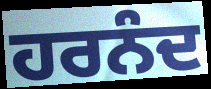
ਹਰਨੰਦ